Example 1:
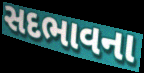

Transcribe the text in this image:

સદભાવના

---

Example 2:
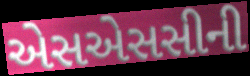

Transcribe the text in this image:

એસએસસીની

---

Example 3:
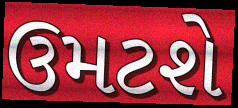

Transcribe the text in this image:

ઉમટશે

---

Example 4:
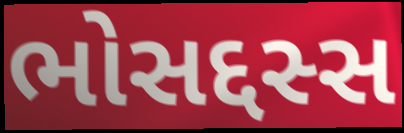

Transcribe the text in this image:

ભોસદ્દસ્સ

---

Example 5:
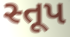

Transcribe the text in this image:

સ્તૂપ